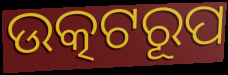
ଉତ୍କଟରୂପ